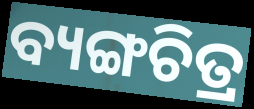
ବ୍ୟଙ୍ଗଚିତ୍ର